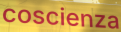
coscienza